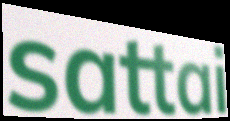
sattai